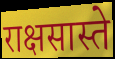
राक्षसास्ते